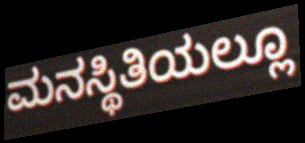
ಮನಸ್ಥಿತಿಯಲ್ಲೂ